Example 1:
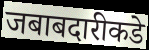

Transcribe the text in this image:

जबाबदारीकडे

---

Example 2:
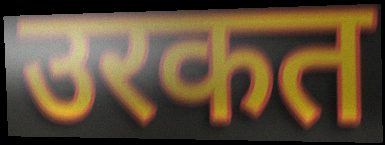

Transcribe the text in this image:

उरकत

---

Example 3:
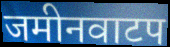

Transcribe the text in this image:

जमीनवाटप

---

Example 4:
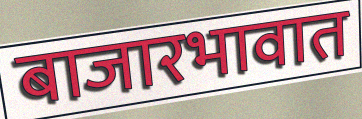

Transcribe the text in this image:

बाजारभावात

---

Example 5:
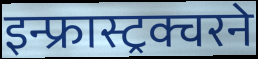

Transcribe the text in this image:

इन्फ्रास्ट्रक्चरने